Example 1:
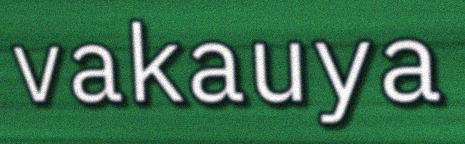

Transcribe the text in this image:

vakauya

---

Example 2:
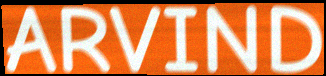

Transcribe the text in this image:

ARVIND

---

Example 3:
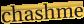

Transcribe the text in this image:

chashme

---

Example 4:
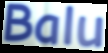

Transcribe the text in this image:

Balu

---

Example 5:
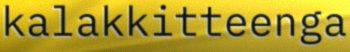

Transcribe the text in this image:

kalakkitteenga